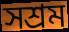
সশ্রম